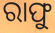
ରାଫୁ